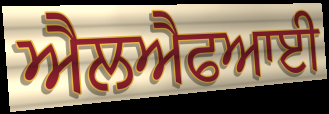
ਐਲਐਫਆਈ